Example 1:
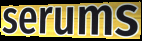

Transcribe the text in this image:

serums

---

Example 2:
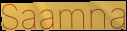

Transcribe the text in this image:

Saamna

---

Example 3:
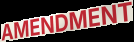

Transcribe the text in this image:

AMENDMENT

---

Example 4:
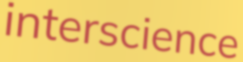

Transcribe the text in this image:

interscience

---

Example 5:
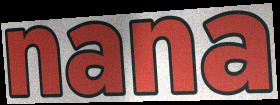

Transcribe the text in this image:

nana